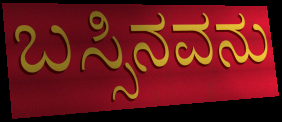
ಬಸ್ಸಿನವನು